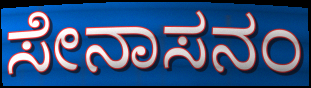
ಸೇನಾಸನಂ